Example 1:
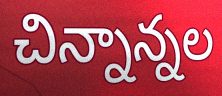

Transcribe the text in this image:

చిన్నాన్నల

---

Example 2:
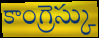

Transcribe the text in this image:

కాంగ్రెస్కు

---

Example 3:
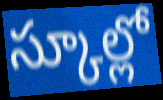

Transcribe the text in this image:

స్కూల్లో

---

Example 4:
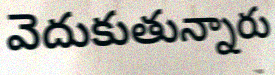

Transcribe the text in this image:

వెదుకుతున్నారు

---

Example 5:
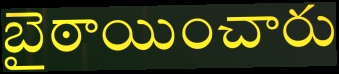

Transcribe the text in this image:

బైఠాయించారు